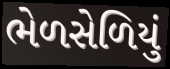
ભેળસેળિયું